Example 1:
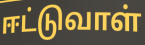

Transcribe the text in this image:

ஈட்டுவாள்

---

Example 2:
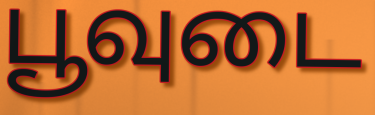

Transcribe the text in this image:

பூவுடை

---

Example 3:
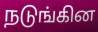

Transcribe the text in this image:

நடுங்கின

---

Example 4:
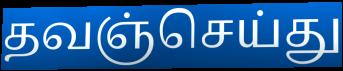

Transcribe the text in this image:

தவஞ்செய்து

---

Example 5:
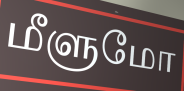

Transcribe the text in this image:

மீளுமோ